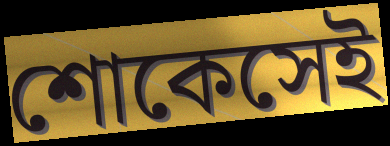
শোকেসেই